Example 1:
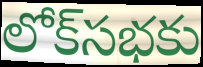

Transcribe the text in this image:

లోక్‌సభకు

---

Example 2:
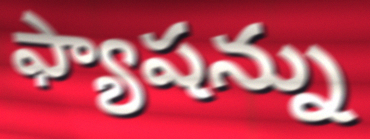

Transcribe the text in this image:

ఫ్యాషన్ను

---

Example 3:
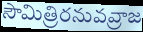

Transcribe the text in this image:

సౌమిత్రిరనువవ్రాజ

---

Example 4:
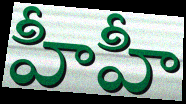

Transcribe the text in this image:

హీహీ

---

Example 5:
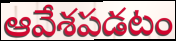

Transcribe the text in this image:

ఆవేశపడటం